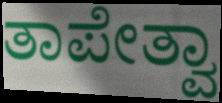
ತಾಪೇತ್ವಾ